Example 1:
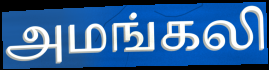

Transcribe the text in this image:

அமங்கலி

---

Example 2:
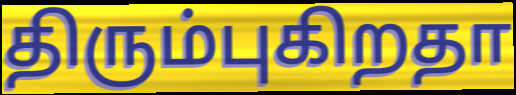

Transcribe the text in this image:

திரும்புகிறதா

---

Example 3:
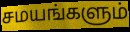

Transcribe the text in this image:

சமயங்களும்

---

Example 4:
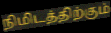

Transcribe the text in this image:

நிமிடத்திற்கும்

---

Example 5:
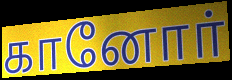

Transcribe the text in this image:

கானோர்